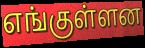
எங்குள்ளன